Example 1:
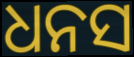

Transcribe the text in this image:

ଧନସ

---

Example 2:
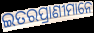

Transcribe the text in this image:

ଇତରପ୍ରାଣୀମାନେ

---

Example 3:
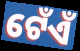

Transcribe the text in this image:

ଟେଁଏଁ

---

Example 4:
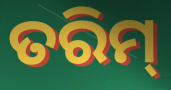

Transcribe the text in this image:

ତରିମ୍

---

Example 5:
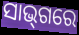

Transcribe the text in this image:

ସାଭ୍‌ଗରେ